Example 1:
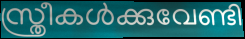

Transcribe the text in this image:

സ്ത്രീകൾക്കുവേണ്ടി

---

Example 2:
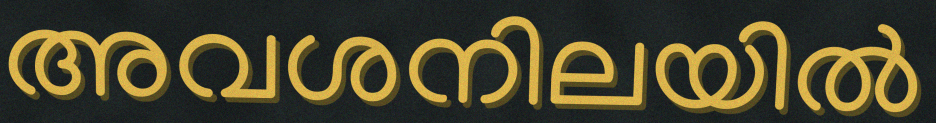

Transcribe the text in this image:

അവശനിലയിൽ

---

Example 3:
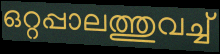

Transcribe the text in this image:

ഒറ്റപ്പാലത്തുവച്ച്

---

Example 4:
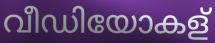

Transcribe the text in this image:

വീഡിയോകള്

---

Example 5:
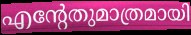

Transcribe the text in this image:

എന്റേതുമാത്രമായി